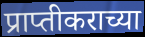
प्राप्तीकराच्या